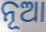
ନୂଆ